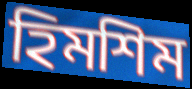
হিমশিম